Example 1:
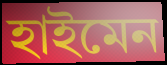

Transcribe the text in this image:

হাইমেন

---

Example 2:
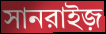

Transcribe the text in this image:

সানরাইজ়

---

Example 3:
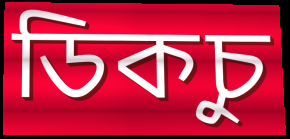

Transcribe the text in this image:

ডিকচু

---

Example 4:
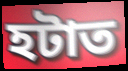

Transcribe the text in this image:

হটাত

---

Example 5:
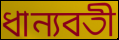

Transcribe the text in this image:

ধান্যবতী